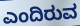
ಎಂದಿರುವ